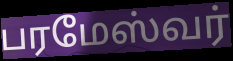
பரமேஸ்வர்